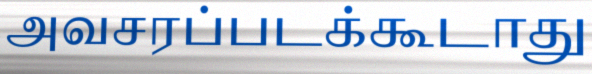
அவசரப்படக்கூடாது